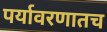
पर्यावरणातच